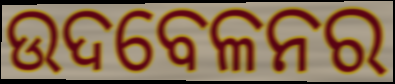
ଉଦବେଳନର